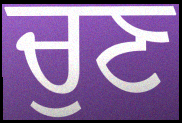
ਚੁਣ